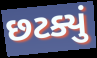
છટક્યું